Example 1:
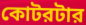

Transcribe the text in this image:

কোটরটার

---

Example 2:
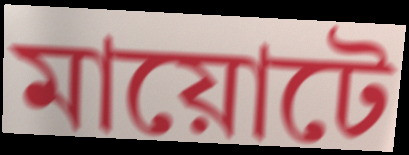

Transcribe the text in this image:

মায়োটে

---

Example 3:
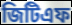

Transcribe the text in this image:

জিটিএফ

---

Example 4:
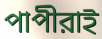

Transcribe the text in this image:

পাপীরাই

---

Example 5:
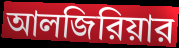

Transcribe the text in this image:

আলজিরিয়ার